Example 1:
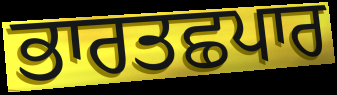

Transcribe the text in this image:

ਭਾਰਤਛਪਾਰ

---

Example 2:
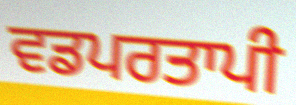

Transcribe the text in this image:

ਵਡਪਰਤਾਪੀ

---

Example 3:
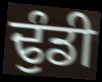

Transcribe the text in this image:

ਢੁੰਡੀ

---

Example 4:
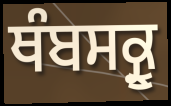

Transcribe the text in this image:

ਥੰਬਸਕ੍ਰੂ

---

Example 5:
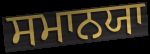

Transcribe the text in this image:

ਸਮਾਨਯਾ